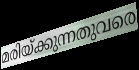
മരിയ്ക്കുന്നതുവരെ